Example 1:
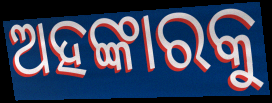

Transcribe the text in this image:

ଅହଙ୍କାରକୁ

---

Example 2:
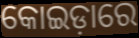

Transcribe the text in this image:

କୋଇଡ଼ାରେ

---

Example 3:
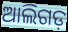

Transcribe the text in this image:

ଆଲିଗଡ଼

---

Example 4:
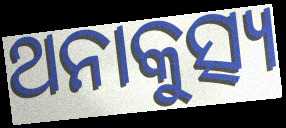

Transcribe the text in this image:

ଥନାକୁତ୍ସ୍ୟ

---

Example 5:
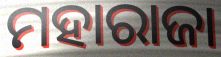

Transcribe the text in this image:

ମହାରାଜା